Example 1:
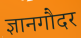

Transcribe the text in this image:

ज्ञानगौदर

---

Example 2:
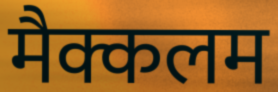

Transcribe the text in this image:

मैक्कलम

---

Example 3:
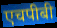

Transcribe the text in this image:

एचपीबी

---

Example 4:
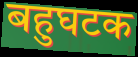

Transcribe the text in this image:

बहुघटक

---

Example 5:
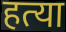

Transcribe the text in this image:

हत्‍या